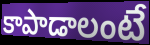
కాపాడాలంటే